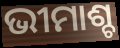
ଭୀମାଶ୍ଚ